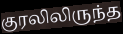
குரலிலிருந்த